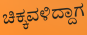
ಚಿಕ್ಕವಳಿದ್ದಾಗ